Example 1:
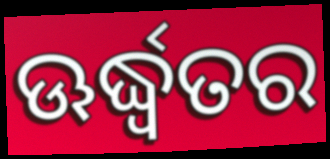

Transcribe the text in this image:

ଊର୍ଦ୍ଧ୍ଵତର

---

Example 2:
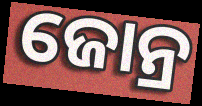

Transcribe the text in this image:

ଜୋନ୍ର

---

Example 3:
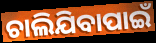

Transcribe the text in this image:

ଚାଲିଯିବାପାଇଁ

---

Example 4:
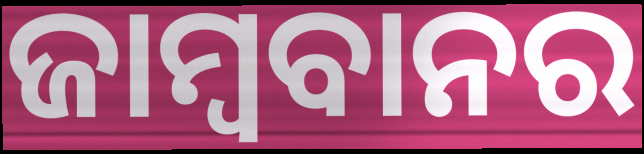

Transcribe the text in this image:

ଜାମ୍ବବାନର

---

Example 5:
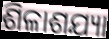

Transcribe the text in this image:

ଶିଳାଶଯ୍ୟା